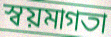
স্বয়মাগতা